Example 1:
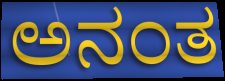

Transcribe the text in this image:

ಅನಂತ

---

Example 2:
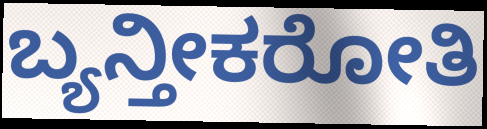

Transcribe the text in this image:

ಬ್ಯನ್ತೀಕರೋತಿ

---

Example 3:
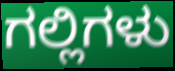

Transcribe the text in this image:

ಗಲ್ಲಿಗಳು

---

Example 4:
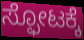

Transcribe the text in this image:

ಸ್ಫೋಟಕ್ಕೆ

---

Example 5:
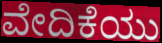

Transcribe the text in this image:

ವೇದಿಕೆಯು